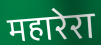
महारेरा